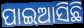
ପାଇଆସିଛି